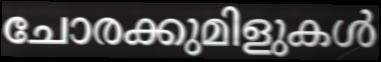
ചോരക്കുമിളുകൾ